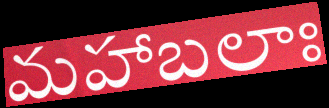
మహాబలాః